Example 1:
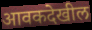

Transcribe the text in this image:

आवकदेखील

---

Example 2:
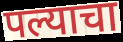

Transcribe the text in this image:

पल्याचा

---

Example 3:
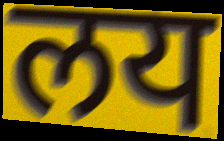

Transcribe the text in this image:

लय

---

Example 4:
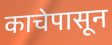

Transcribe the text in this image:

काचेपासून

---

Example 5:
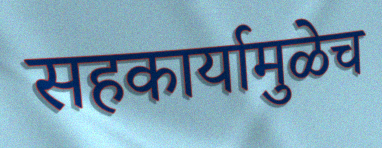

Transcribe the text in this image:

सहकार्यामुळेच